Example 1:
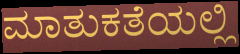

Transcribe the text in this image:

ಮಾತುಕತೆಯಲ್ಲಿ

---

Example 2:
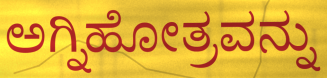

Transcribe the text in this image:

ಅಗ್ನಿಹೋತ್ರವನ್ನು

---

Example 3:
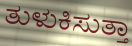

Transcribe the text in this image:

ತುಳುಕಿಸುತ್ತಾ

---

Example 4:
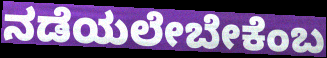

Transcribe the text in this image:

ನಡೆಯಲೇಬೇಕೆಂಬ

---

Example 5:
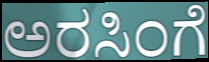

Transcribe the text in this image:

ಅರಸಿಂಗೆ